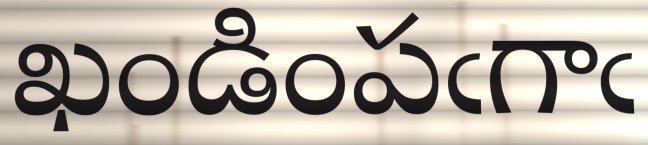
ఖండింపఁగాఁ